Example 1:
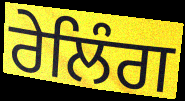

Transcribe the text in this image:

ਰੇਲਿੰਗ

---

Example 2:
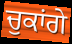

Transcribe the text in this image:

ਚੁਕਾਂਗੇ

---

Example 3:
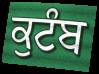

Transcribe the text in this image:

ਕੁਟੰਬ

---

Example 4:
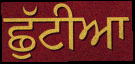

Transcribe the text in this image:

ਛੁੱਟੀਆ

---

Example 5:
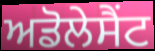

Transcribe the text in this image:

ਅਡੋਲੇਸੈਂਟ